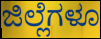
ಜಿಲ್ಲೆಗಳೂ